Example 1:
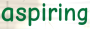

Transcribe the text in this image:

aspiring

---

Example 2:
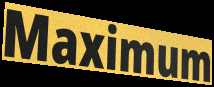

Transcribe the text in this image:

Maximum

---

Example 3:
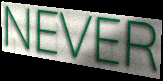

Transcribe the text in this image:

NEVER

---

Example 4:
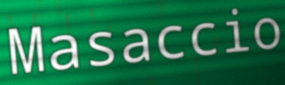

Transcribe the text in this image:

Masaccio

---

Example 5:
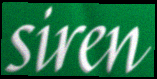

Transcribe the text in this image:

siren